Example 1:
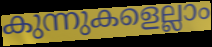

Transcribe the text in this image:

കുന്നുകളെല്ലാം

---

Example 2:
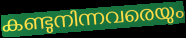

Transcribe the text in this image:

കണ്ടുനിന്നവരെയും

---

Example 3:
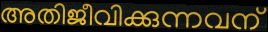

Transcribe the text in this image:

അതിജീവിക്കുന്നവന്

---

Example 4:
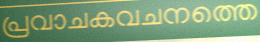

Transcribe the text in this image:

പ്രവാചകവചനത്തെ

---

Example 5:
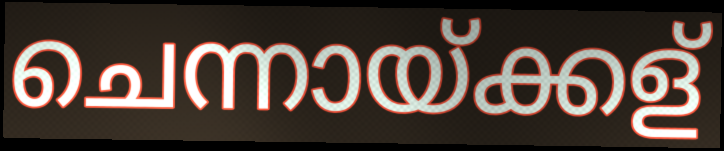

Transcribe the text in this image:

ചെന്നായ്ക്കള്